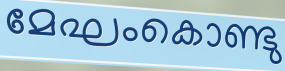
മേഘംകൊണ്ടു